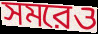
সমরেও